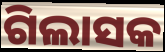
ଗିଲାସକ